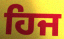
ਹਿਜ